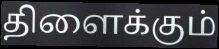
திளைக்கும்